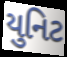
યુનિટ